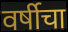
वर्षीचा